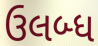
ઉલબ્ધ